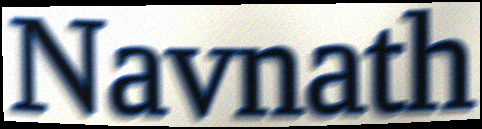
Navnath